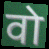
वो